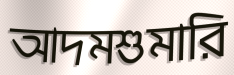
আদমশুমারি